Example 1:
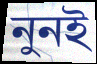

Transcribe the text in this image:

নুনই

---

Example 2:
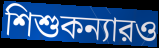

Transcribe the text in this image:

শিশুকন্যারও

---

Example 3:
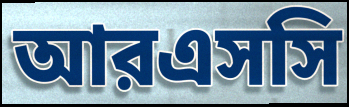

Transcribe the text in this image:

আরএসসি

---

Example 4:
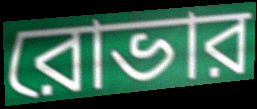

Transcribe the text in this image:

রোভার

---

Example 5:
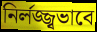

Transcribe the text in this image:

নির্লজ্জ্বভাবে